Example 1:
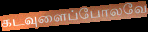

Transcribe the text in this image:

கடவுளைப்போலவே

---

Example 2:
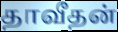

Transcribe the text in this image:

தாவீதன்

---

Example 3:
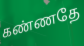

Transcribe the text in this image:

கண்ணதே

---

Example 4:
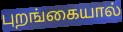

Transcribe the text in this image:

புறங்கையால்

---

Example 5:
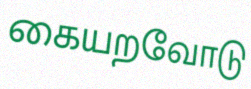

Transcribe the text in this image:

கையறவோடு